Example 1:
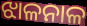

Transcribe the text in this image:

ଝାଳନାଳ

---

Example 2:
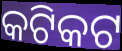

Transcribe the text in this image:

କଟିକଟ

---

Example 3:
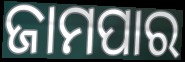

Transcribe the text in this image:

ଜାମପାର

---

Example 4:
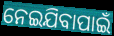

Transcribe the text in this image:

ନେଇଯିବାପାଇଁ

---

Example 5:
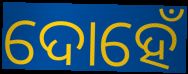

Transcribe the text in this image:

ଦୋହେଁ